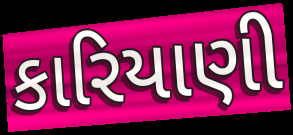
કારિયાણી